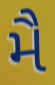
મૈ